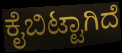
ಕೈಬಿಟ್ಟಾಗಿದೆ